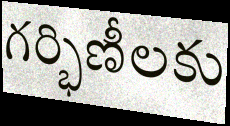
గర్భిణీలకు